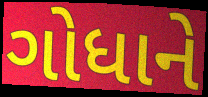
ગોધાને